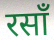
रसाँ